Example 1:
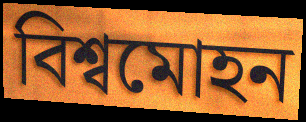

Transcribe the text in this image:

বিশ্বমোহন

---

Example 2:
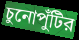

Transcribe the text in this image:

চুনোপুঁটির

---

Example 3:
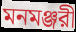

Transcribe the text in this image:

মনমঞ্জরী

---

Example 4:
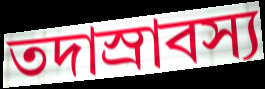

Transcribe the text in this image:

তদাস্রাবস্য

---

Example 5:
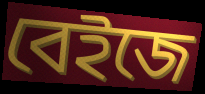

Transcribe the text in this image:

বেইজে